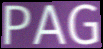
PAG